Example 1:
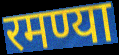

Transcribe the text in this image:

रमण्या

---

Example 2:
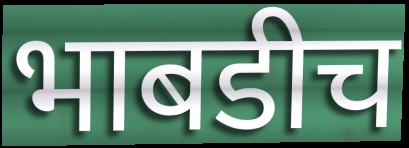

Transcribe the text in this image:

भाबडीच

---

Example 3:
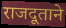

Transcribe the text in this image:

राजदूताने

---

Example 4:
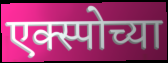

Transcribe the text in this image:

एक्स्पोच्या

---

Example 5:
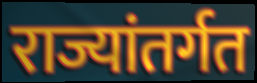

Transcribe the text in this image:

राज्यांतर्गत